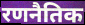
रणनैतिक